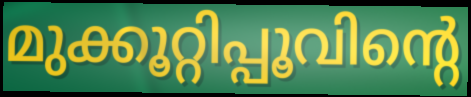
മുക്കൂറ്റിപ്പൂവിന്റെ